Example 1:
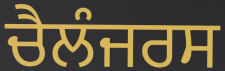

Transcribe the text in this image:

ਚੈਲੰਜਰਸ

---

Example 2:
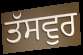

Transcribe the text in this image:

ਤੱਸਵੁਰ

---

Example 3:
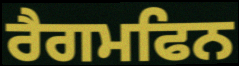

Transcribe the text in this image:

ਰੈਗਮਫਿਨ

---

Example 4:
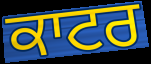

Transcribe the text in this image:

ਕਾਟਰ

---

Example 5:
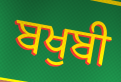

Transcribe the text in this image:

ਬਖੁਬੀ